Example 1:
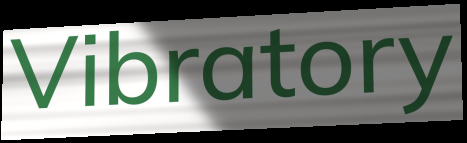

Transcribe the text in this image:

Vibratory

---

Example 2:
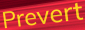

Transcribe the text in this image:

Prevert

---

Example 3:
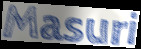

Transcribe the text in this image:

Masuri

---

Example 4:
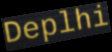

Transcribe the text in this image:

Deplhi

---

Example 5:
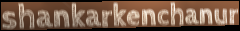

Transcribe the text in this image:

shankarkenchanur